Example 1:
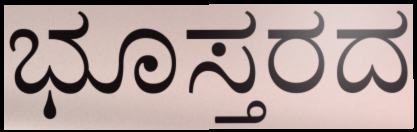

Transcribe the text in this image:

ಭೂಸ್ತರದ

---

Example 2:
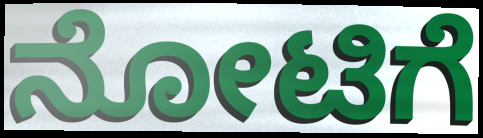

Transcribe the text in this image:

ನೋಟಿಗೆ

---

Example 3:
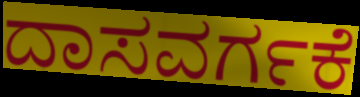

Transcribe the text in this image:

ದಾಸವರ್ಗಕೆ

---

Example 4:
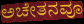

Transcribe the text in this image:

ಅಚೇತನವೂ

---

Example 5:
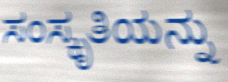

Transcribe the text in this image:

ಸಂಸ್ಕೃತಿಯನ್ನು